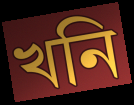
খনি